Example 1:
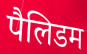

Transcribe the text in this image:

पैलिडम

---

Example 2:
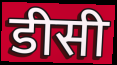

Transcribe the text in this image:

डीसी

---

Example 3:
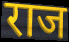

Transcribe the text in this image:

राज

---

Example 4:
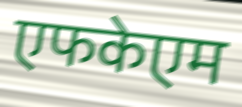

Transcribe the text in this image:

एफकेएम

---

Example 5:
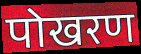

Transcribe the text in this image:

पोखरण